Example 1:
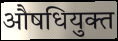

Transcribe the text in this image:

औषधियुक्त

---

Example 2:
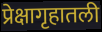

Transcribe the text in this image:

प्रेक्षागृहातली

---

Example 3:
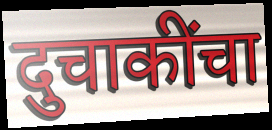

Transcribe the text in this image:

दुचाकींचा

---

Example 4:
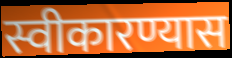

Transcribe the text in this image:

स्वीकारण्यास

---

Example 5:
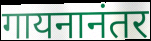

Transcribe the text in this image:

गायनानंतर